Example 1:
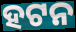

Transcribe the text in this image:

ହଟନ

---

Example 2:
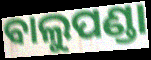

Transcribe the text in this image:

ବାଲୁପଣ୍ଡା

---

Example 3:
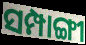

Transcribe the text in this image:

ସମ୍ପାଙ୍ଗୀ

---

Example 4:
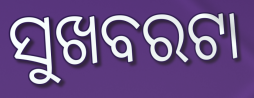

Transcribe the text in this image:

ସୁଖବରଟା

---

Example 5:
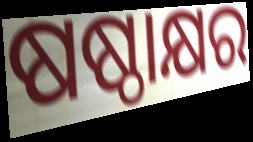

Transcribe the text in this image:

ଷଷ୍ଠାକ୍ଷର